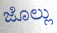
ಜೊಲ್ಲು